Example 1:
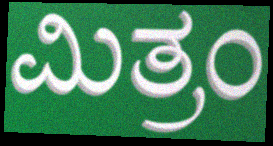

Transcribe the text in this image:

ಮಿತ್ರಂ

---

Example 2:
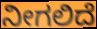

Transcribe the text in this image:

ನೀಗಲಿದೆ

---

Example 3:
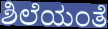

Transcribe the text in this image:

ಶಿಲೆಯಂತೆ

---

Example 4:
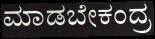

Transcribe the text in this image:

ಮಾಡಬೇಕಂದ್ರ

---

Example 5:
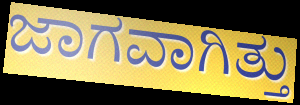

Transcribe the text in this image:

ಜಾಗವಾಗಿತ್ತು